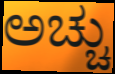
ಅಚ್ಚು